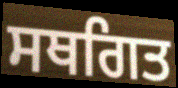
ਸਥਗਿਤ